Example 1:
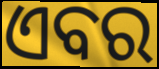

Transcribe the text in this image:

ଏବର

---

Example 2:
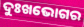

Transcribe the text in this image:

ଦୁଃଖଭୋଗର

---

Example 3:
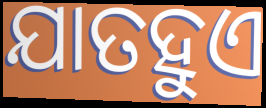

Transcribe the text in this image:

ଯାତହୁଏ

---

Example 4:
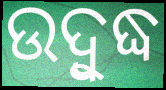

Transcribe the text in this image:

ଉଦ୍ବୁଦ୍ଧ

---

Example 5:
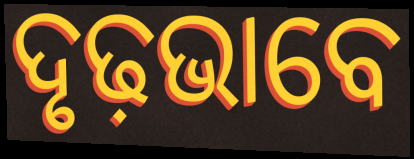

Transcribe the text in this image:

ଦୃଢ଼ଭାବେ